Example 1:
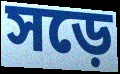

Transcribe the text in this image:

সড়ে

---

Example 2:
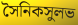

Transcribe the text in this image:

সৈনিকসুলভ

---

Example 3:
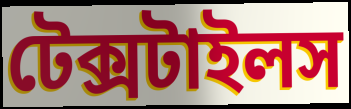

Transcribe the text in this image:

টেক্সটাইলস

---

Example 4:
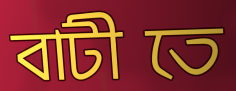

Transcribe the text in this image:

বাটীতে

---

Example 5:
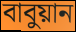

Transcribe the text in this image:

বাবুয়ান